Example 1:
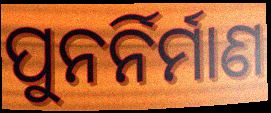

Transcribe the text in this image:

ପୁନର୍ନିର୍ମାଣ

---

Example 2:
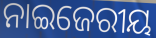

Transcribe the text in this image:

ନାଇଜେରୀୟ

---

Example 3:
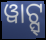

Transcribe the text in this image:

ୱାଟ୍ସ୍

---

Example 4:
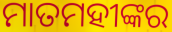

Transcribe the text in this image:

ମାତମହୀଙ୍କର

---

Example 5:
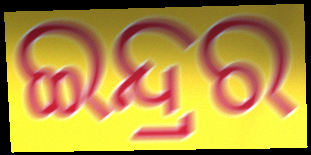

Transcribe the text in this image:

ଇନ୍ଦ୍ରର